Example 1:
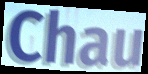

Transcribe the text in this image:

Chau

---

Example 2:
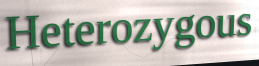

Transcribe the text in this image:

Heterozygous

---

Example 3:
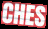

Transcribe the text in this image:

CHES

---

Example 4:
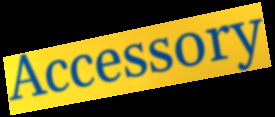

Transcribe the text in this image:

Accessory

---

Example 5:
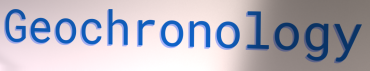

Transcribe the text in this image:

Geochronology